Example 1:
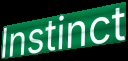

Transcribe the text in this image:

lnstinct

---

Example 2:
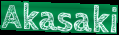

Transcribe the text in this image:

Akasaki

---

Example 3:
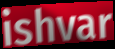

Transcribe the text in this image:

ishvar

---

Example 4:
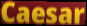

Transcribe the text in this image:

Caesar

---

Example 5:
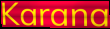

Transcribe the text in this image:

Karana